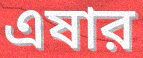
এষার